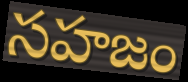
సహజం